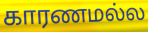
காரணமல்ல